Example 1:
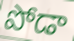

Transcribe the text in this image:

పోడా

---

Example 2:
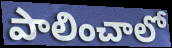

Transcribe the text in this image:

పాలించాలో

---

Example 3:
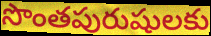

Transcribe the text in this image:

సొంతపురుషులకు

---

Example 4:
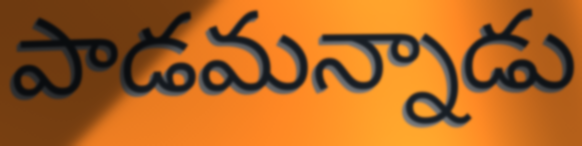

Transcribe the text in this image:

పాడమన్నాడు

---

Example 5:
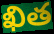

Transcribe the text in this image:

ఖిత